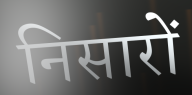
निसारों